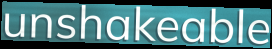
unshakeable